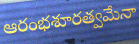
ఆరంభశూరత్వమేనా